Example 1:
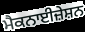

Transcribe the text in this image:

ਮੈਕਨਾਈਜ਼ੇਸ਼ਨ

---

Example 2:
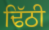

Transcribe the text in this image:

ਢਿੱਠੀ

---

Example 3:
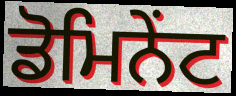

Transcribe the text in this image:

ਡੋਮਿਨੇਂਟ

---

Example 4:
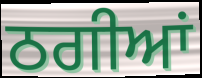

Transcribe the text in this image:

ਠਗੀਆਂ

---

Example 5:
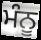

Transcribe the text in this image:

ਮੰਨੂ